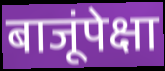
बाजूंपेक्षा